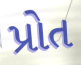
પ્રોત